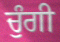
ਚੁੰਗੀ